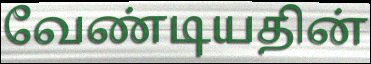
வேண்டியதின்